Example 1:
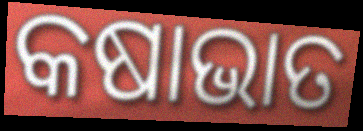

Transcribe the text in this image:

କଷାଭାତ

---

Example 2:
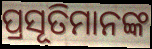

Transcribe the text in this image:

ପ୍ରସୂତିମାନଙ୍କ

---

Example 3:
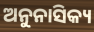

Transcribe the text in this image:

ଅନୁନାସିକ୍ୟ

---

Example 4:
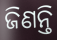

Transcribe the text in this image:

ଜିଣନ୍ତି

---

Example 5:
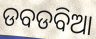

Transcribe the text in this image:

ଡବଡବିଆ